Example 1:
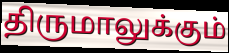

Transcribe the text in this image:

திருமாலுக்கும்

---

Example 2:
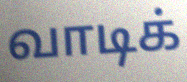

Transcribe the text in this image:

வாடிக்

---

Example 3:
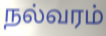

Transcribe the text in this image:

நல்வரம்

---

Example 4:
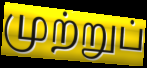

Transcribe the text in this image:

முற்றுப்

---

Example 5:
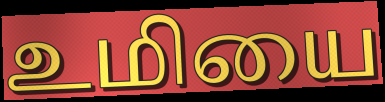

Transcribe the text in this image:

உமியை